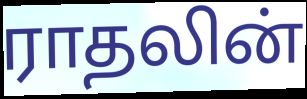
ராதலின்